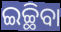
ଇଚ୍ଛିବା